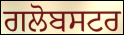
ਗਲੋਬਸਟਰ